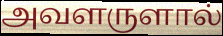
அவளருளால்